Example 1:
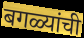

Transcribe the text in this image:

बगळ्यांची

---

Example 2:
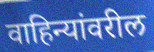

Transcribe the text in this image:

वाहिन्यांवरील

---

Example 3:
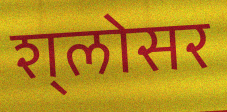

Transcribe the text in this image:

श्लोसर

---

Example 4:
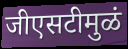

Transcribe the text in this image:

जीएसटीमुळं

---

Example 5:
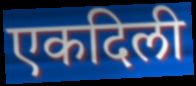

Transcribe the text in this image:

एकदिली